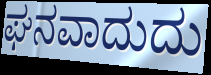
ಘನವಾದುದು